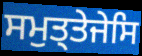
ਸਮੁਤ੍ਤੇਜੇਸਿ